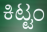
ಕಿಟ್ಟಂ